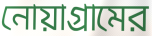
নোয়াগ্রামের